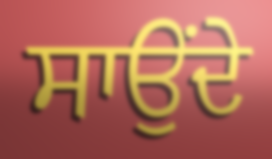
ਸਾਉਂਦੇ